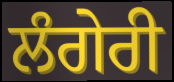
ਲੰਗੇਰੀ